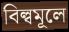
বিল্বমূলে